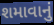
શમાવાનું